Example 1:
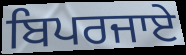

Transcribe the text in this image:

ਬਿਪਰਜਾਏ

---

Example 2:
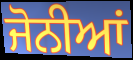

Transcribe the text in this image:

ਜੋਨੀਆਂ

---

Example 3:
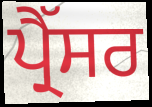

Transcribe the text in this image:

ਪ੍ਰੈੱਸਰ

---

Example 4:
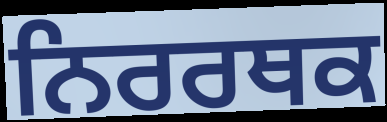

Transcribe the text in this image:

ਨਿਰਰਥਕ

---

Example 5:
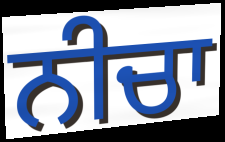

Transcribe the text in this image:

ਨੀਚਾ